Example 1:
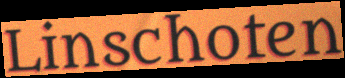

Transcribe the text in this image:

Linschoten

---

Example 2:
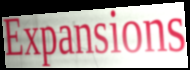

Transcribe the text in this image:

Expansions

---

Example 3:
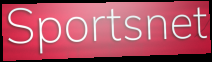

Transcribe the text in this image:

Sportsnet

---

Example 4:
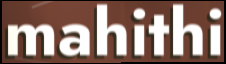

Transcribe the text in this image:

mahithi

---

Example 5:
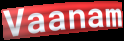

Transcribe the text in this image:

Vaanam